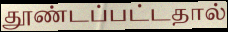
தூண்டப்பட்டதால்